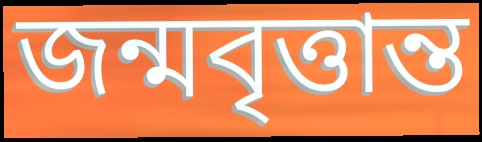
জন্মবৃত্তান্ত